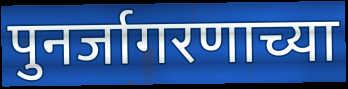
पुनर्जागरणाच्या